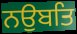
ਨਉਬਤਿ